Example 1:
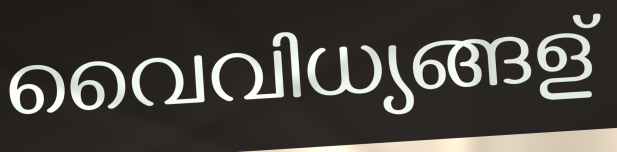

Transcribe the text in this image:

വൈവിധ്യങ്ങള്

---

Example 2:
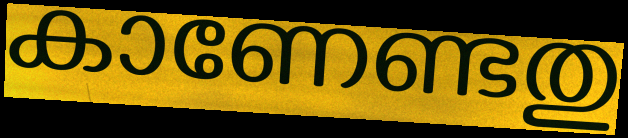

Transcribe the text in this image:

കാണേണ്ടതു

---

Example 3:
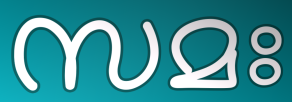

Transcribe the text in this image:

സമഃ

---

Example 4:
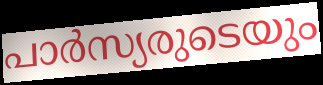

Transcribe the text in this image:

പാർസ്യരുടെയും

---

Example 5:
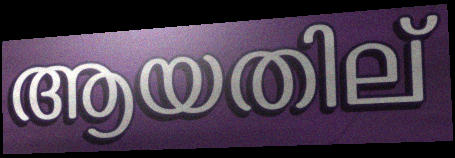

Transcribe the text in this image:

ആയതില്